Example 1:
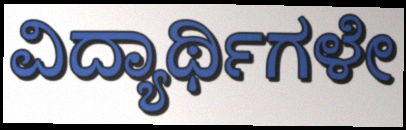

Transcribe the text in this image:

ವಿದ್ಯಾರ್ಥಿಗಳೇ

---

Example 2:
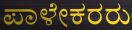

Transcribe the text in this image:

ಪಾಳೇಕರರು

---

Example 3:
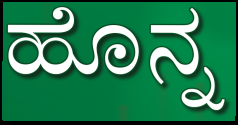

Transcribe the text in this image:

ಹೊನ್ನ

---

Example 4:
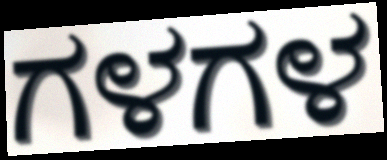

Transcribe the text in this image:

ಗಳಗಳ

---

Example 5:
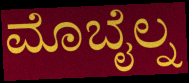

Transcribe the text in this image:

ಮೊಬೈಲ್ನ